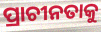
ପ୍ରାଚୀନତାକୁ